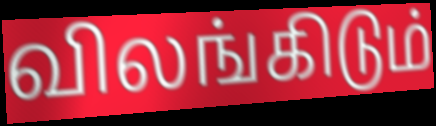
விலங்கிடும்